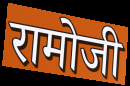
रामोजी